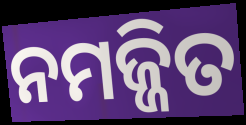
ନମଜ୍ଜିତ